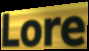
Lore